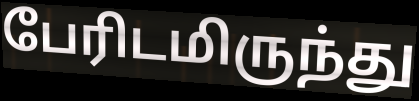
பேரிடமிருந்து